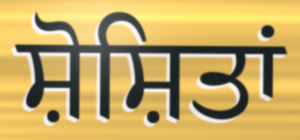
ਸ਼ੋਸ਼ਿਤਾਂ